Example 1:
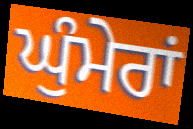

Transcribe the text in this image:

ਘੁੰਮੇਰਾਂ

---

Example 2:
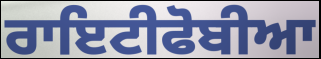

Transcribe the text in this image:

ਰਾਇਟੀਫੋਬੀਆ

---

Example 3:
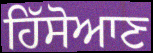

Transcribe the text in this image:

ਹਿੱਸੋਆਣ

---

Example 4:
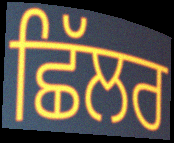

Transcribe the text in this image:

ਛਿੱਲਰ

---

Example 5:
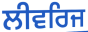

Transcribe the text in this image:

ਲੀਵਰਿਜ